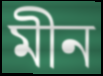
মীন